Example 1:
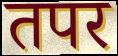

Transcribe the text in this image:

तपर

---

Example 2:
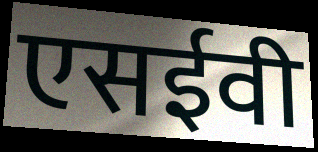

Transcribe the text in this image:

एसईवी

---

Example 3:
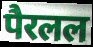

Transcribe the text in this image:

पैरलल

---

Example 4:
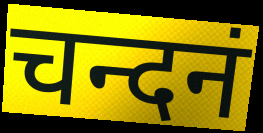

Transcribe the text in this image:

चन्दनं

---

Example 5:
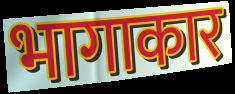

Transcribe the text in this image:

भागाकार